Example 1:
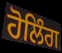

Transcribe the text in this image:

ਹੋਲਿੰਗ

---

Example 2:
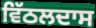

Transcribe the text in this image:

ਵਿੱਠਲਦਾਸ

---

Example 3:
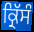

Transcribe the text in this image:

ਕ੍ਰਿੱਸੰ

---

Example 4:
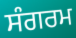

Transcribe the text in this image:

ਸੰਗਰਮ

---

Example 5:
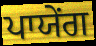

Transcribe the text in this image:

ਪਾਯੇਂਗ